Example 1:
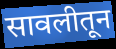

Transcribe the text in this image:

सावलीतून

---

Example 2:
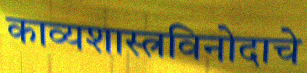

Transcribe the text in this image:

काव्यशास्त्रविनोदाचे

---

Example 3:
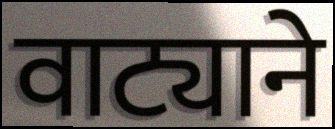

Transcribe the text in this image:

वाट्याने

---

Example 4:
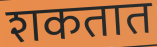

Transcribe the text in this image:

शकतात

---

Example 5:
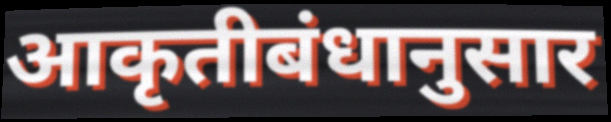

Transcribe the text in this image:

आकृतीबंधानुसार